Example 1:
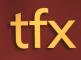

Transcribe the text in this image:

tfx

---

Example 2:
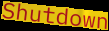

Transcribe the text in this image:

Shutdown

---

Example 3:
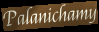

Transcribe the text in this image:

Palanichamy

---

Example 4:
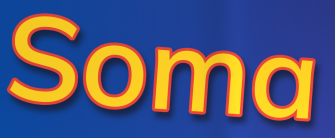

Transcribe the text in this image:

Soma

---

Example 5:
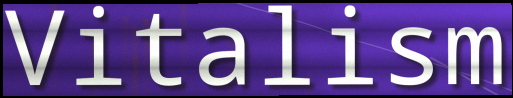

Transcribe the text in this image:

Vitalism